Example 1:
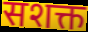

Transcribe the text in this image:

सशक्त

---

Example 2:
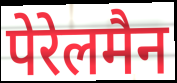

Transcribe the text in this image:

पेरेलमैन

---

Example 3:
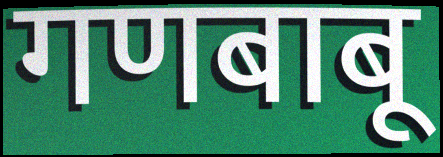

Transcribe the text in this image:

गणबाबू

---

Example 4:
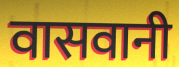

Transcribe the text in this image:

वासवानी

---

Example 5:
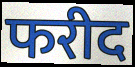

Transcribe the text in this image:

फरीद